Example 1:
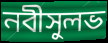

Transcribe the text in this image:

নবীসুলভ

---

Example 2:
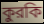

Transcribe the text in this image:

কুরকি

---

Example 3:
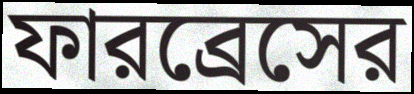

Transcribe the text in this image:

ফারব্রেসের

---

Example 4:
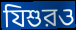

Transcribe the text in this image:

যিশুরও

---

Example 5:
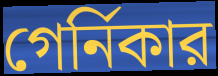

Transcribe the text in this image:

গের্নিকার